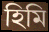
হিমি